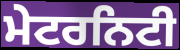
ਮੇਟਰਨਿਟੀ